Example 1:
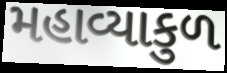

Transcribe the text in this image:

મહાવ્યાકુળ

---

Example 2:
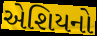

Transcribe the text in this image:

એશિયનો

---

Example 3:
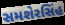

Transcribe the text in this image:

સમશેરસિંહ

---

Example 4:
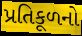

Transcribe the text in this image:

પ્રતિકૂળનો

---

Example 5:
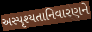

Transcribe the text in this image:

અસ્પૃશ્યતાનિવારણને